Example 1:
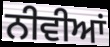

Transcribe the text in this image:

ਨੀਵੀਆਂ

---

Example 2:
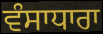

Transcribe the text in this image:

ਵੰਸਾਧਾਰਾ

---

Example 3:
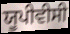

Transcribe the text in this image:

ਯੂਪੀਵੀਸੀ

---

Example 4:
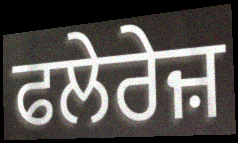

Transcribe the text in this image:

ਫਲੇਰੇਜ਼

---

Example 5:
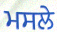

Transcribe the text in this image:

ਮਸਲੇ